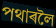
পথাৰলৈ